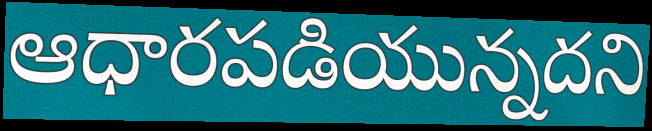
ఆధారపడియున్నదని